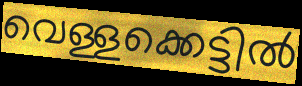
വെള്ളക്കെട്ടിൽ